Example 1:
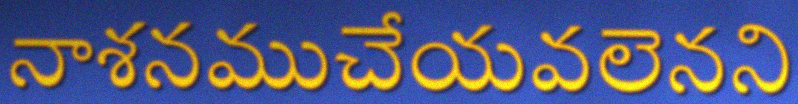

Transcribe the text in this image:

నాశనముచేయవలెనని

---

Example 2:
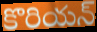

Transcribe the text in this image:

కొరియన్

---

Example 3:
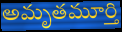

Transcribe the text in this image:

అమృతమూర్తి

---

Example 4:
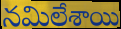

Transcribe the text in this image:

నమిలేశాయి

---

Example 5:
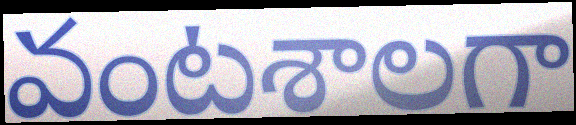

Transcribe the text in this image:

వంటశాలగా